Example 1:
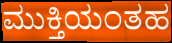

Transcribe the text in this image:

ಮುಕ್ತಿಯಂತಹ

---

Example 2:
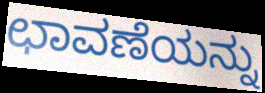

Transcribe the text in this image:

ಛಾವಣೆಯನ್ನು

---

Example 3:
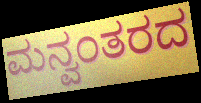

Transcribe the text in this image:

ಮನ್ವಂತರದ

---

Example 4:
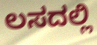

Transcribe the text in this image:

ಲಸದಲ್ಲಿ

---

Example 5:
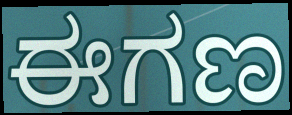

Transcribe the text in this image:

ಈಗಣ